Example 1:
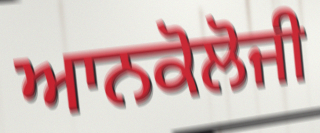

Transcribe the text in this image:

ਆਨਕੋਲੋਜੀ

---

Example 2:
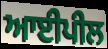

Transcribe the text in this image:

ਆਈਪੀਲ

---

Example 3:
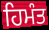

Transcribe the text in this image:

ਹਿਮੰਤ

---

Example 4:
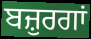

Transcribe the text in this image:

ਬਜ਼ੁਰਗਾਂ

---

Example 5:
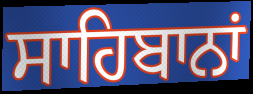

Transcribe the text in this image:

ਸਾਹਿਬਾਨਾਂ